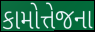
કામોત્તેજના